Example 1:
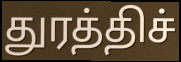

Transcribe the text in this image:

துரத்திச்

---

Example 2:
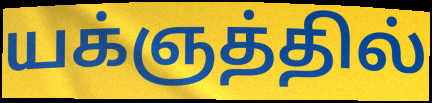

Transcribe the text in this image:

யக்ஞத்தில்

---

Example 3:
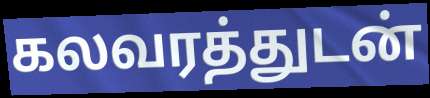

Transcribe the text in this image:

கலவரத்துடன்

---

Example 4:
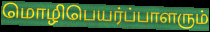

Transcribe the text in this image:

மொழிபெயர்ப்பாளரும்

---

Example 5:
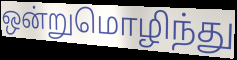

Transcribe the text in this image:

ஒன்றுமொழிந்து